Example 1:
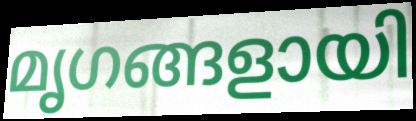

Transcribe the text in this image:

മൃഗങ്ങളായി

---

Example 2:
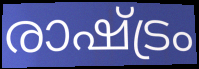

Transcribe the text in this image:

രാഷ്ട്രം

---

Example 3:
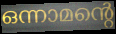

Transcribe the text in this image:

ഒന്നാമന്റെ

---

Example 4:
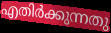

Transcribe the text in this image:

എതിർക്കുന്നതു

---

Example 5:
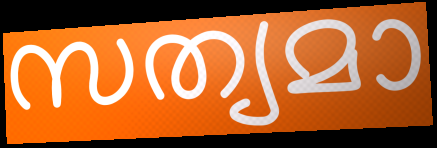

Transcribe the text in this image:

സത്യമാ